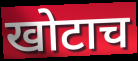
खोटाच